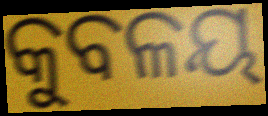
କୁବଳୟ